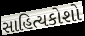
સાહિત્યકોશો